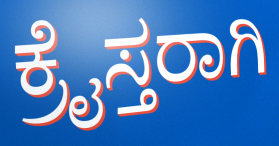
ಕ್ರೈಸ್ತರಾಗಿ